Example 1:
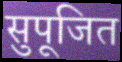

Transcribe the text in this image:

सुपूजित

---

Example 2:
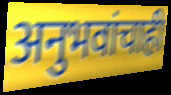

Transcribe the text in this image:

अनुभवांचाही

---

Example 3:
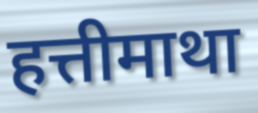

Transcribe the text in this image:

हत्तीमाथा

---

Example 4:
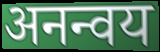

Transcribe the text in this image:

अनन्वय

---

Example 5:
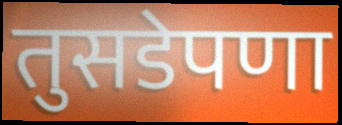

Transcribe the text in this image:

तुसडेपणा